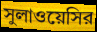
সুলাওয়েসির